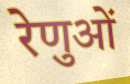
रेणुओं